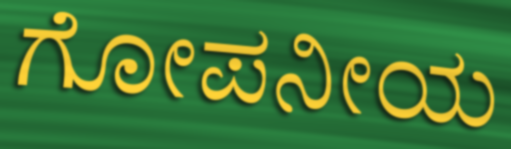
ಗೋಪನೀಯ